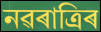
নৱৰাত্ৰিৰ